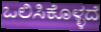
ಒಲಿಸಿಕೊಳ್ಳದೆ